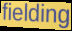
fielding